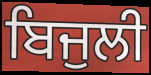
ਬਿਜੁਲੀ